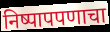
निष्पापपणाचा